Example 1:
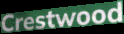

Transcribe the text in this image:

Crestwood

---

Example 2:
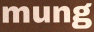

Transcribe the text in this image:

mung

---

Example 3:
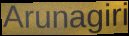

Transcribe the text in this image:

Arunagiri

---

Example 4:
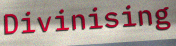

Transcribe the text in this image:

Divinising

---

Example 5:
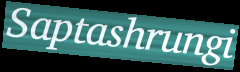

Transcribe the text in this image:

Saptashrungi